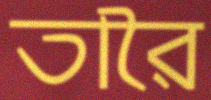
তাৱৈ